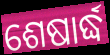
ଶେଷାର୍ଦ୍ଧ